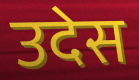
उदेस